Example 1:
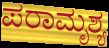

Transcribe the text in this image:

ಪರಾಮೃಶ್ಯ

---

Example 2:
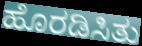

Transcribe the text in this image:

ಹೊರಡಿಸಿತು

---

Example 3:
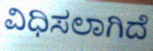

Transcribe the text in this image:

ವಿಧಿಸಲಾಗಿದೆ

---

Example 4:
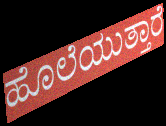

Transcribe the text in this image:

ಹೊಲೆಯುತ್ತಾರೆ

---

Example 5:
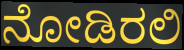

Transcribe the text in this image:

ನೋಡಿರಲಿ